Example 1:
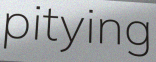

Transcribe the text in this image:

pitying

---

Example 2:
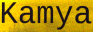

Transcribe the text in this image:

Kamya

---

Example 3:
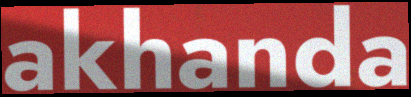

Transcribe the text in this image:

akhanda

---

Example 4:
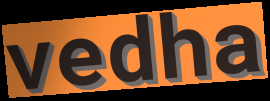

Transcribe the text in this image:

vedha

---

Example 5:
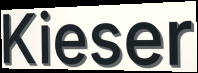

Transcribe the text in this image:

Kieser